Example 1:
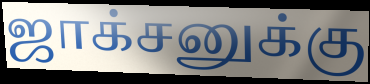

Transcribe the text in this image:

ஜாக்சனுக்கு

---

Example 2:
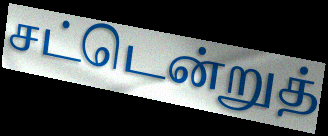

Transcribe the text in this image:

சட்டென்றுத்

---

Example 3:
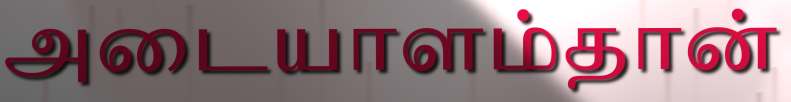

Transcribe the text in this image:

அடையாளம்தான்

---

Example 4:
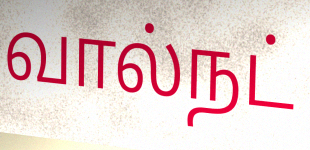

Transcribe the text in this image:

வால்நட்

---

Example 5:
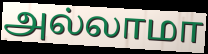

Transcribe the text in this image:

அல்லாமா